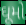
ઘૂમો